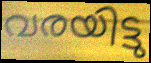
വരയിട്ടു